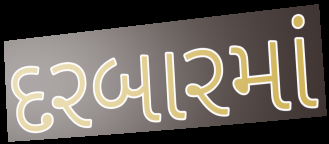
દરબારમાં